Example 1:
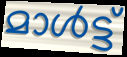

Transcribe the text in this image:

മാൾട്ട്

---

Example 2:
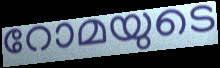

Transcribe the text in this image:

റോമയുടെ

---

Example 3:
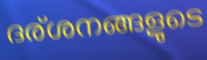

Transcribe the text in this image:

ദര്ശനങ്ങളുടെ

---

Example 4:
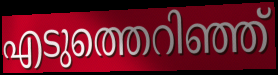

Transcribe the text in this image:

എടുത്തെറിഞ്ഞ്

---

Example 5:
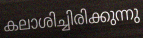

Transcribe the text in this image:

കലാശിച്ചിരിക്കുന്നു